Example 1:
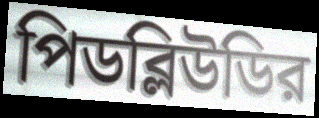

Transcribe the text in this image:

পিডব্লিউডির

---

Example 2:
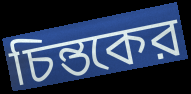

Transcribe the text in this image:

চিন্তকের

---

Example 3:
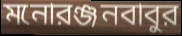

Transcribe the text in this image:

মনোরঞ্জনবাবুর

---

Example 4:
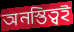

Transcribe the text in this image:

অনস্তিত্বই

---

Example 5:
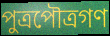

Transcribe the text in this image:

পুত্রপৌত্রগণ